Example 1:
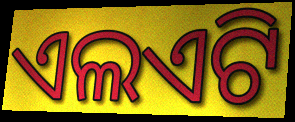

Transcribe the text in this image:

ଏଲଏଟି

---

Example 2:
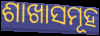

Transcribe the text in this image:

ଶାଖାସମୂହ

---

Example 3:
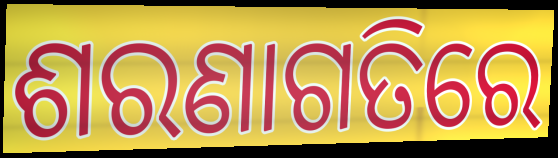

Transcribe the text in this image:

ଶରଣାଗତିରେ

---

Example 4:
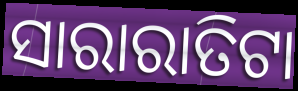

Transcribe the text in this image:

ସାରାରାତିଟା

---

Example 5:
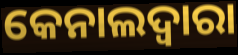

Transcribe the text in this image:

କେନାଲଦ୍ଵାରା